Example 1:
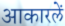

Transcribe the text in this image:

आकारलें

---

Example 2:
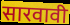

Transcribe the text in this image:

सारवावी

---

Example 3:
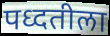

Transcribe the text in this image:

पध्दतीला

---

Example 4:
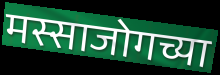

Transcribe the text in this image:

मस्साजोगच्या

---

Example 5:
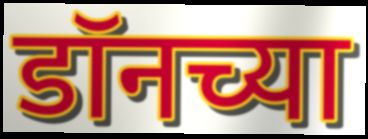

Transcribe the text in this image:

डॉनच्या